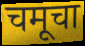
चमूचा